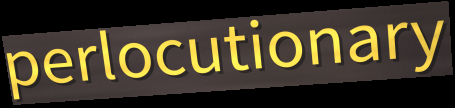
perlocutionary